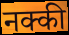
नक्की